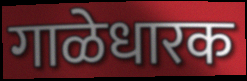
गाळेधारक